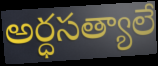
అర్ధసత్యాలే